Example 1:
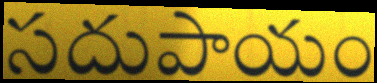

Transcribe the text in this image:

సదుపాయం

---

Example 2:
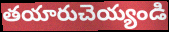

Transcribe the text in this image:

తయారుచెయ్యండి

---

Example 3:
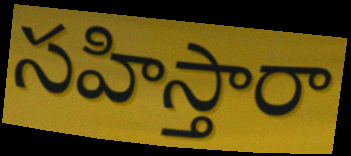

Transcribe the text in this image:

సహిస్తారా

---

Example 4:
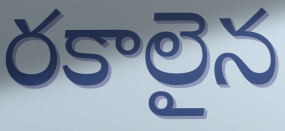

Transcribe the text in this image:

రకాలైన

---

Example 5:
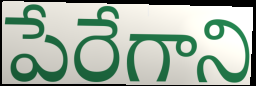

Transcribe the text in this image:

పేరేగాని